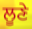
ਲੂਣੇ